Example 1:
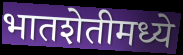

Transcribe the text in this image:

भातशेतीमध्ये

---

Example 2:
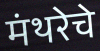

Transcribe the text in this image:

मंथरेचे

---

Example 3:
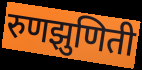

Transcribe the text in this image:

रुणझुणिती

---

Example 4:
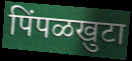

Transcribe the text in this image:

पिंपळखुटा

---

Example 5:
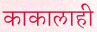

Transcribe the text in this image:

काकालाही